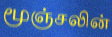
மூஞ்சலின்